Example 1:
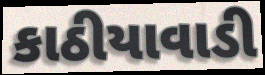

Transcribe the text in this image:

કાઠીયાવાડી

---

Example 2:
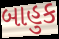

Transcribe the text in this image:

બાહુક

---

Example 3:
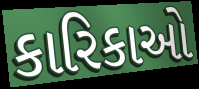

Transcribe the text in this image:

કારિકાઓ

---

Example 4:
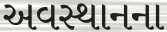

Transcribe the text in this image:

અવસ્થાનના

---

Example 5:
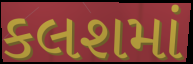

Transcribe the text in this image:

કલશમાં